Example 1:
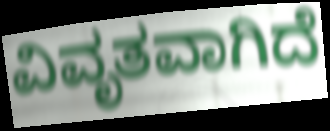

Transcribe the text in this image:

ವಿವೃತವಾಗಿದೆ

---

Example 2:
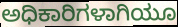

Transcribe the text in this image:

ಅಧಿಕಾರಿಗಳಾಗಿಯೂ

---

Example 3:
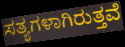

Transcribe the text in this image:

ಸತ್ಯಗಳಾಗಿರುತ್ತವೆ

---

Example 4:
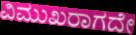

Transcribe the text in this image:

ವಿಮುಖರಾಗದೇ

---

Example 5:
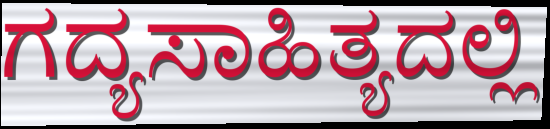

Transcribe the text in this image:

ಗದ್ಯಸಾಹಿತ್ಯದಲ್ಲಿ